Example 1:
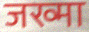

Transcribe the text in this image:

जख्मा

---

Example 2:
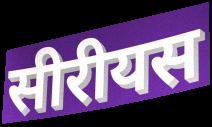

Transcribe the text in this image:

सीरीयस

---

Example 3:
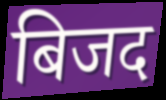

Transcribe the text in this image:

बिजद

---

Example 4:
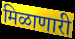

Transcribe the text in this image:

मिळाणारी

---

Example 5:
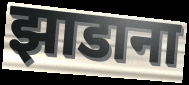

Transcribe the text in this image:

झाडाना